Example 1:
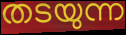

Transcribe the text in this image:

തടയുന്ന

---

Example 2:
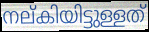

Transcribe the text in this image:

നല്കിയിട്ടുള്ളത്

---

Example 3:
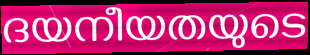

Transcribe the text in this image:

ദയനീയതയുടെ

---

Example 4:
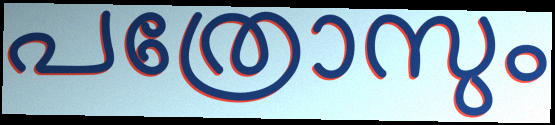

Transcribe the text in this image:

പത്രോസും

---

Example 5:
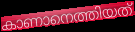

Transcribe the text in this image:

കാണാനെത്തിയത്